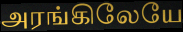
அரங்கிலேயே